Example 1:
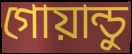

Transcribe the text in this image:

গোয়ান্ডু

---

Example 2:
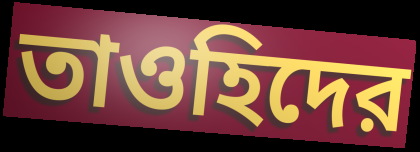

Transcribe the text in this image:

তাওহিদের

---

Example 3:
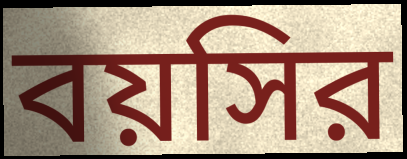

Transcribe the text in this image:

বয়সির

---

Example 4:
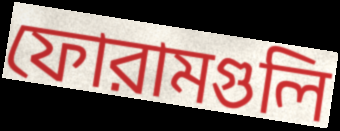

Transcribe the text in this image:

ফোরামগুলি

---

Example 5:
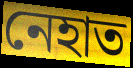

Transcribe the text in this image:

নেহাত